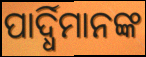
ପାର୍ଦ୍ଧିମାନଙ୍କ